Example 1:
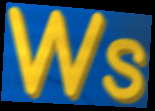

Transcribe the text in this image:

Ws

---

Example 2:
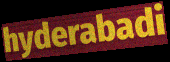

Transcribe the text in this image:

hyderabadi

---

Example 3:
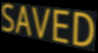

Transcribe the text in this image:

SAVED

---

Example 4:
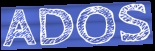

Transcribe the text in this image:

ADOS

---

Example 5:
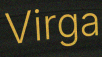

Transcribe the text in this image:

Virga